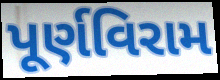
પૂર્ણવિરામ